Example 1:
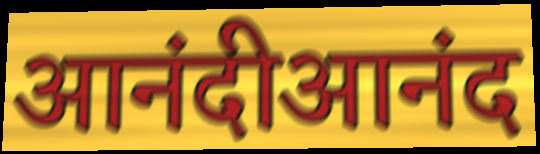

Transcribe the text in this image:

आनंदीआनंद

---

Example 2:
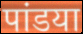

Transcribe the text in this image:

पांडया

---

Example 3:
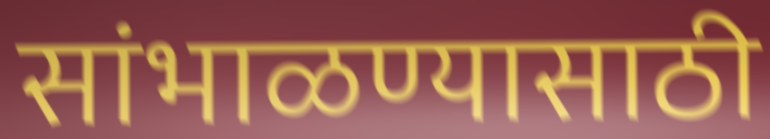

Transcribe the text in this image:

सांभाळण्यासाठी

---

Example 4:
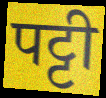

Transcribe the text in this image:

पट्टी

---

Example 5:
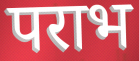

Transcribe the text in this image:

पराभ